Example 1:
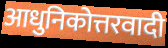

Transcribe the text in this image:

आधुनिकोत्तरवादी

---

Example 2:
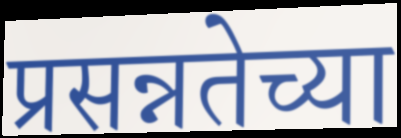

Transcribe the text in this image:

प्रसन्नतेच्या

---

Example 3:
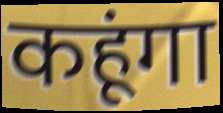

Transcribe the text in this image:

कहूंगा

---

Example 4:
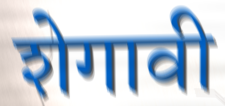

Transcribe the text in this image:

शेगावी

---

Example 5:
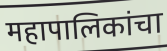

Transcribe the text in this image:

महापालिकांचा